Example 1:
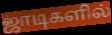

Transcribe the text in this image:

ஜாடிகளில்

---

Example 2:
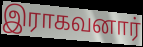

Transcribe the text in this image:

இராகவனார்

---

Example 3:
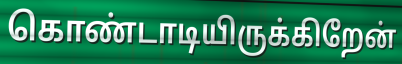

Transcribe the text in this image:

கொண்டாடியிருக்கிறேன்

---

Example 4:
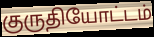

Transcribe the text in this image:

குருதியோட்டம்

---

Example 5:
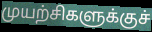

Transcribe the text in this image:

முயற்சிகளுக்குச்